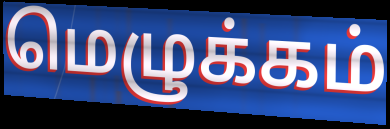
மெழுக்கம்